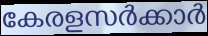
കേരളസർക്കാർ